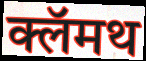
क्लॅमथ